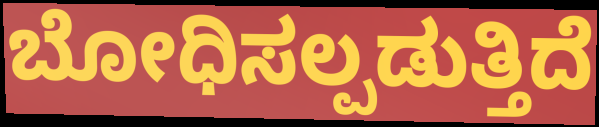
ಬೋಧಿಸಲ್ಪಡುತ್ತಿದೆ